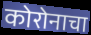
कोरोनाचा